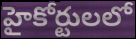
హైకోర్టులలో